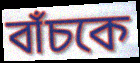
বাঁচকে